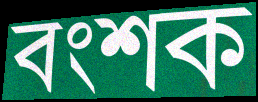
বংশক